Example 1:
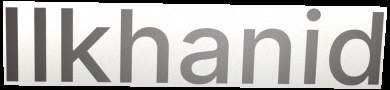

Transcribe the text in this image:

Ilkhanid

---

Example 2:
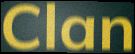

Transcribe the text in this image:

Clan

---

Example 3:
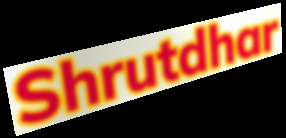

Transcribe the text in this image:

Shrutdhar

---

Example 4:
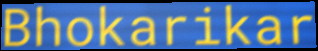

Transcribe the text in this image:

Bhokarikar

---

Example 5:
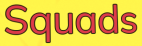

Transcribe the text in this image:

Squads